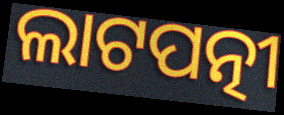
ଲାଟପତ୍ନୀ